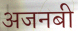
अजनबी